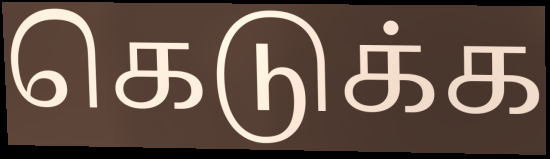
கெடுக்க